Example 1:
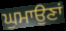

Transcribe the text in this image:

ਘੁਮਾਉਣਾਂ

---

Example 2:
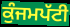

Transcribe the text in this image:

ਕੁੰਜਮਪੱਟੀ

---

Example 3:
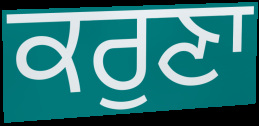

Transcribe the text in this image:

ਕਰੁਣਾ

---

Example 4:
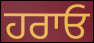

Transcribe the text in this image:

ਹਰਾਓ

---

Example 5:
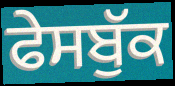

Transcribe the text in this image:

ਫੇਸਬੁੱਕ